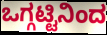
ಒಗ್ಗಟ್ಟಿನಿಂದ